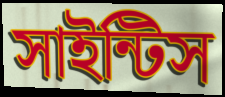
সাইন্টিস